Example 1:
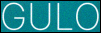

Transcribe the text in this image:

GULO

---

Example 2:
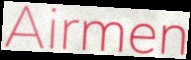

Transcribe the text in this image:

Airmen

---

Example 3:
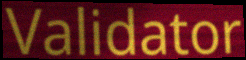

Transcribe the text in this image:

Validator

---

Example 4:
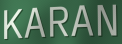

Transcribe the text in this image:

KARAN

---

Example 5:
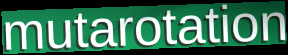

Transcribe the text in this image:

mutarotation